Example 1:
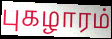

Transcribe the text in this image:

புகழாரம்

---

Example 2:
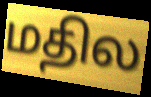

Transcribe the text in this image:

மதில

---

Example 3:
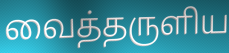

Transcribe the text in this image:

வைத்தருளிய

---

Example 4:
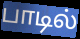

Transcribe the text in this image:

பாடில்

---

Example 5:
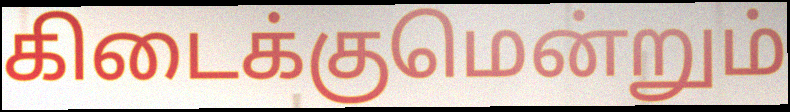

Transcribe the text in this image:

கிடைக்குமென்றும்